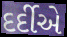
દર્દીએ